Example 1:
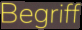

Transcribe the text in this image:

Begriff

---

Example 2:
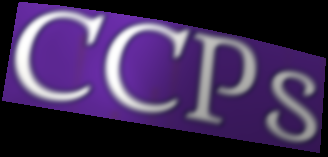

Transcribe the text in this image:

CCPs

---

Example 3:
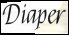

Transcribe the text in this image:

Diaper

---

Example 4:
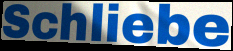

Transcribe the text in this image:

Schliebe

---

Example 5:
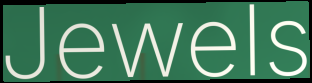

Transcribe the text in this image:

Jewels